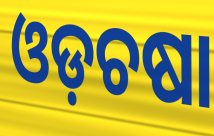
ଓଡ଼ଚଷା